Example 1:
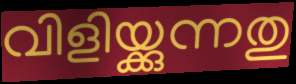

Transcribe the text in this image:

വിളിയ്ക്കുന്നതു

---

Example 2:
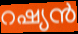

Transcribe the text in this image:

റഷ്യൻ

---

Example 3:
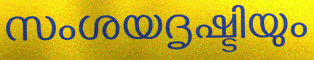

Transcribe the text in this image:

സംശയദൃഷ്ടിയും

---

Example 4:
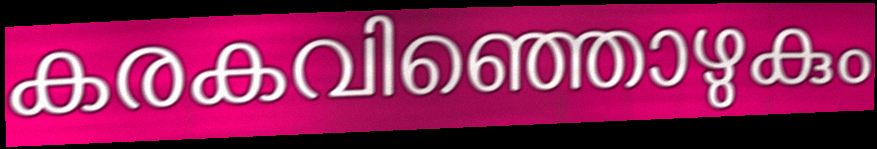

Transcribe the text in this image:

കരകവിഞ്ഞൊഴുകും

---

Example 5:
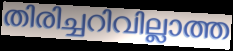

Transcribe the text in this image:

തിരിച്ചറിവില്ലാത്ത